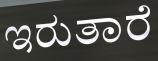
ಇರುತಾರೆ